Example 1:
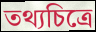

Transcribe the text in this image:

তথ্যচিত্রে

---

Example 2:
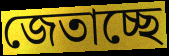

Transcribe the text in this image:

জেতাচ্ছে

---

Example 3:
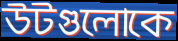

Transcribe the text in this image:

উটগুলোকে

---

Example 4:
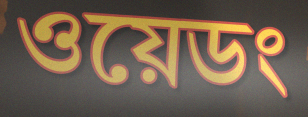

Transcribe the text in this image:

ওয়েডং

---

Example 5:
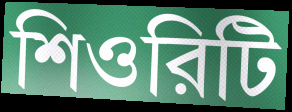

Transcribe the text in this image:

শিওরিটি